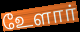
உேளார்